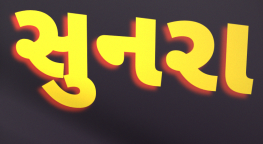
સુનરા